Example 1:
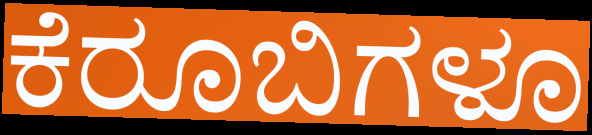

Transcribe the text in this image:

ಕೆರೂಬಿಗಳೂ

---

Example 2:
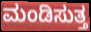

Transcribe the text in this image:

ಮಂಡಿಸುತ್ತ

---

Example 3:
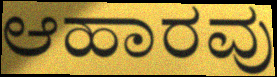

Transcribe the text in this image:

ಆಹಾರವು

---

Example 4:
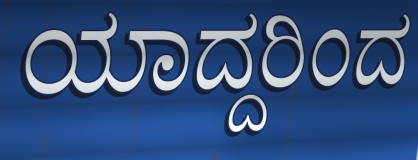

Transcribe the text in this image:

ಯಾದ್ದರಿಂದ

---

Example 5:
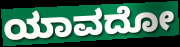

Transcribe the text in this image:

ಯಾವದೋ